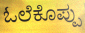
ಓಲೆಕೊಪ್ಪು